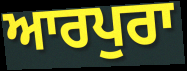
ਆਰਪੁਰਾ